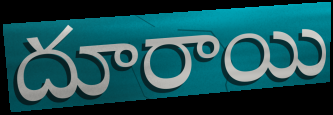
దూరాయి